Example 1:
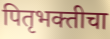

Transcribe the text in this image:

पितृभक्तीचा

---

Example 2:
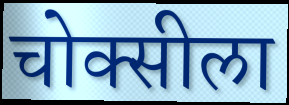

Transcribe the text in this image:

चोक्सीला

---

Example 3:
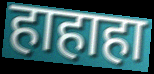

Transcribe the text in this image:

हाहाहा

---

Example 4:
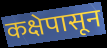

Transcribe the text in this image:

कक्षेपासून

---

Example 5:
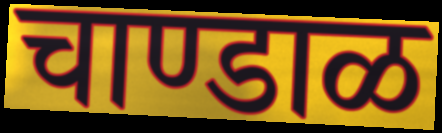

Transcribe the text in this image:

चाण्डाळ